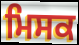
ਮਿਸਕ